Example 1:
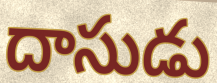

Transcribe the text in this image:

దాసుడు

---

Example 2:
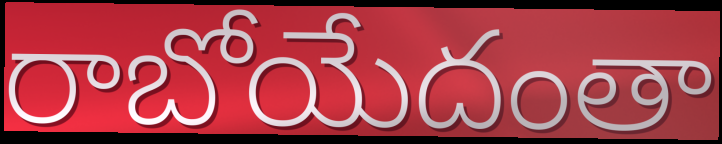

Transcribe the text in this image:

రాబోయేదంతా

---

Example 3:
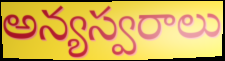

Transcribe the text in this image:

అన్యస్వరాలు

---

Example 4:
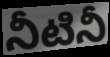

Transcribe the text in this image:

నీటినీ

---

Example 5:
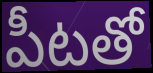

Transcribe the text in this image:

పీటతో